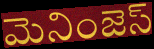
మెనింజెస్